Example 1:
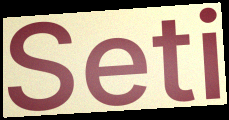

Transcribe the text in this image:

Seti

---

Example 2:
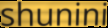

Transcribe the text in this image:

shunini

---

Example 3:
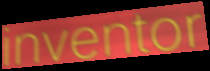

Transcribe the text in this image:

inventor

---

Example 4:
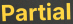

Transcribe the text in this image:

Partial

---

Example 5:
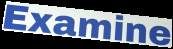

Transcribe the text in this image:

Examine